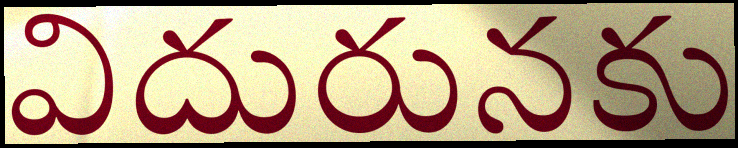
విదురునకు